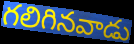
గలిగినవాడు